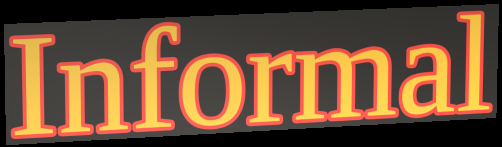
Informal